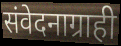
संवेदनाग्राही